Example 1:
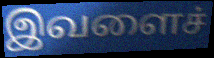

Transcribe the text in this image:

இவளைச்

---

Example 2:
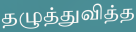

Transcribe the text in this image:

தழுத்துவித்த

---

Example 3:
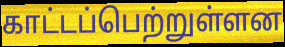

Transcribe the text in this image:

காட்டப்பெற்றுள்ளன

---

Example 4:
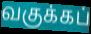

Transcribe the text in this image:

வகுக்கப்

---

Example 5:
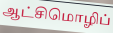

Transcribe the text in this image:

ஆட்சிமொழிப்